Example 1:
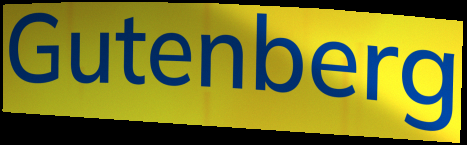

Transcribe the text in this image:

Gutenberg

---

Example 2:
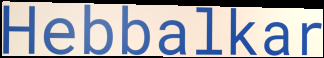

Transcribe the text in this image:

Hebbalkar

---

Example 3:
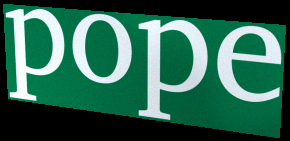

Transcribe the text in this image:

pope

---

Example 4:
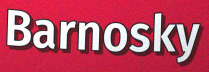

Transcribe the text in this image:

Barnosky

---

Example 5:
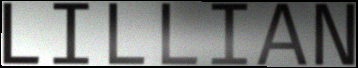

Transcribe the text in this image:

LILLIAN